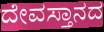
ದೇವಸ್ತಾನದ